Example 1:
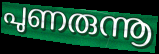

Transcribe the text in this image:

പുണരുന്നൂ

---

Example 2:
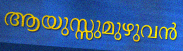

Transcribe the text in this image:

ആയുസ്സുമുഴുവൻ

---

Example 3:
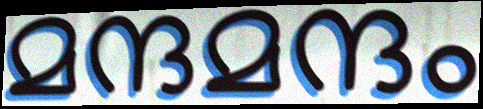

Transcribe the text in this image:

മന്ദമന്ദം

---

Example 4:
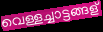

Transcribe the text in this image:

വെള്ളച്ചാട്ടങ്ങള്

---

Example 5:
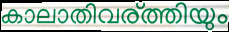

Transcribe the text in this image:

കാലാതിവര്ത്തിയും